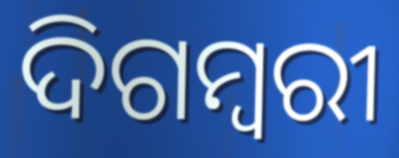
ଦିଗମ୍ୱରୀ